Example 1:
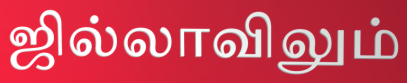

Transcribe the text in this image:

ஜில்லாவிலும்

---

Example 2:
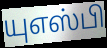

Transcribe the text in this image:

யுஎஸ்பி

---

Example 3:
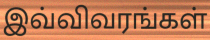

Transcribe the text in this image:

இவ்விவரங்கள்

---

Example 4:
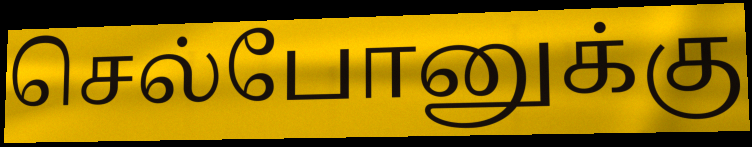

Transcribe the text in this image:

செல்போனுக்கு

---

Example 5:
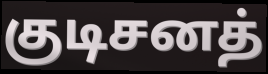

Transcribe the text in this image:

குடிசனத்